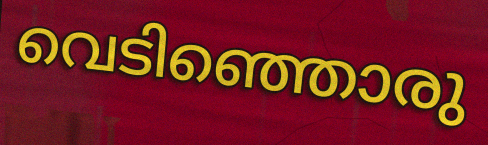
വെടിഞ്ഞൊരു